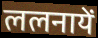
ललनायें